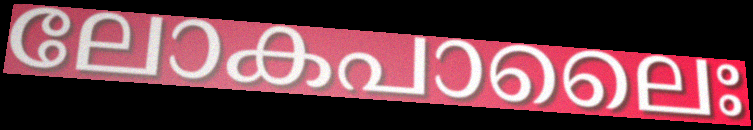
ലോകപാലൈഃ